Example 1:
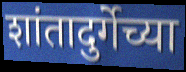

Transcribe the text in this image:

शांतादुर्गेच्या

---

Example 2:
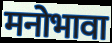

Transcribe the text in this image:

मनोभावा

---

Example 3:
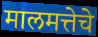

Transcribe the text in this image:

मालमत्तेचे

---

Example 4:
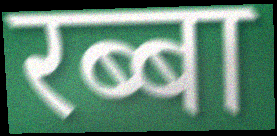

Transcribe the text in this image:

रब्बा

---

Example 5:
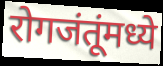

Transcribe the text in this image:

रोगजंतूंमध्ये